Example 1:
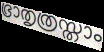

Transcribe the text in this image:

ഭ്രാതൃത്രസ്താം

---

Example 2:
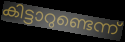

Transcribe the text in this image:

കിട്ടാറുണ്ടെന്ന്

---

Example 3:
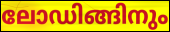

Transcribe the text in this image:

ലോഡിങ്ങിനും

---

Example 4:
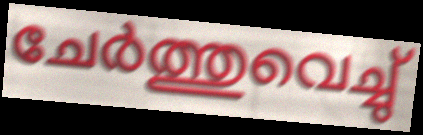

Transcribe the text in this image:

ചേർത്തുവെച്ചു്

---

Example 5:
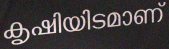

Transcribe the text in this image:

കൃഷിയിടമാണ്